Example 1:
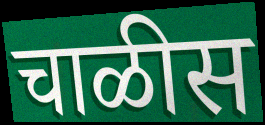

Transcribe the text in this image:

चाळीस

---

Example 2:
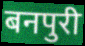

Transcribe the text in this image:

बनपुरी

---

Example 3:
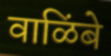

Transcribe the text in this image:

वाळिंबे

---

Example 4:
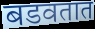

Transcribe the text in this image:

बडवतात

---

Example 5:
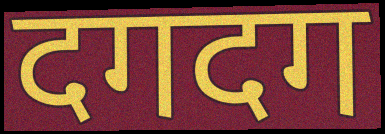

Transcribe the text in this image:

दगदग